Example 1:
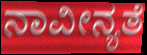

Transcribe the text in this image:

ನಾವೀನ್ಯತೆ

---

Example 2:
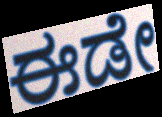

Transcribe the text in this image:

ಈಡೇ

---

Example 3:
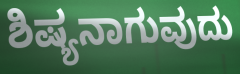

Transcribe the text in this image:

ಶಿಷ್ಯನಾಗುವುದು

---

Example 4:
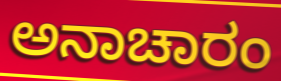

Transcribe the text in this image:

ಅನಾಚಾರಂ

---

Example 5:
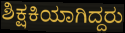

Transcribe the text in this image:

ಶಿಕ್ಷಕಿಯಾಗಿದ್ದರು